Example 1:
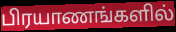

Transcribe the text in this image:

பிரயாணங்களில்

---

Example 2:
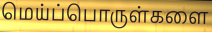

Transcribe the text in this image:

மெய்ப்பொருள்களை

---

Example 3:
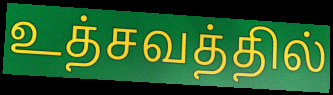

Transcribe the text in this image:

உத்சவத்தில்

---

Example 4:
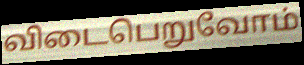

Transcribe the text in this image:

விடைபெறுவோம்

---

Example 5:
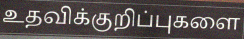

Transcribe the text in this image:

உதவிக்குறிப்புகளை